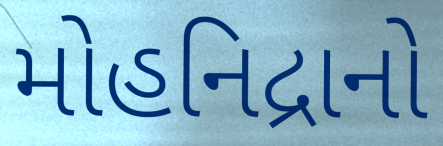
મોહનિદ્રાનો